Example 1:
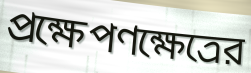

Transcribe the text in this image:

প্রক্ষেপণক্ষেত্রের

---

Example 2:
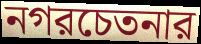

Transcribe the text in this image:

নগরচেতনার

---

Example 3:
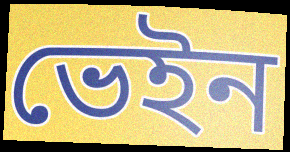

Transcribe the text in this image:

ভেইন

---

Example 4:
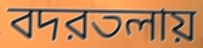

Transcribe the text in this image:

বদরতলায়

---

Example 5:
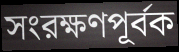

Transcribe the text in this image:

সংরক্ষণপূর্বক